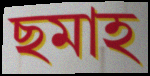
ছমাহ